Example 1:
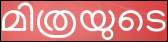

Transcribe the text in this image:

മിത്രയുടെ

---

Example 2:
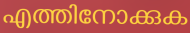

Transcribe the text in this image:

എത്തിനോക്കുക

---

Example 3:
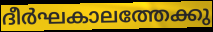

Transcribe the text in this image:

ദീർഘകാലത്തേക്കു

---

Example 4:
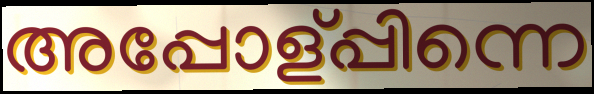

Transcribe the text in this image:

അപ്പോള്പ്പിന്നെ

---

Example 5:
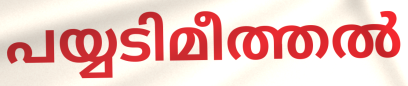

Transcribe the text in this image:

പയ്യടിമീത്തൽ